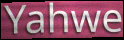
Yahwe